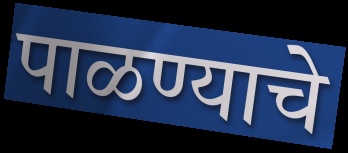
पाळण्याचे